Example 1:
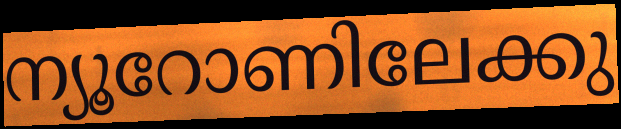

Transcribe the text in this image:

ന്യൂറോണിലേക്കു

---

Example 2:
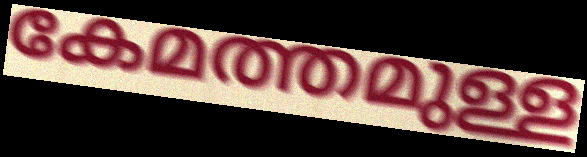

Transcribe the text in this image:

കേമത്തമുള്ള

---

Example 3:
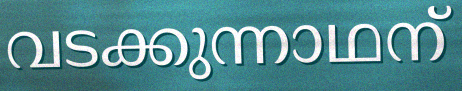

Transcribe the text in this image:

വടക്കുന്നാഥന്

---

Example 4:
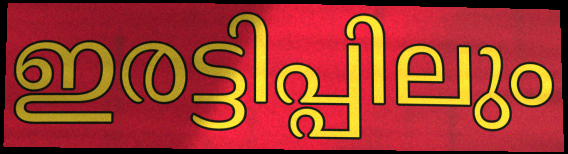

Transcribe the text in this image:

ഇരട്ടിപ്പിലും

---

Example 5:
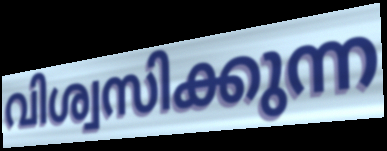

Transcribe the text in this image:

വിശ്വസിക്കുന്ന